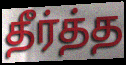
தீர்த்த